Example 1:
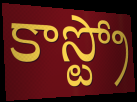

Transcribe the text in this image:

కాస్ట్రో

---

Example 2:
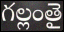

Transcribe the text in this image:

గల్లంతై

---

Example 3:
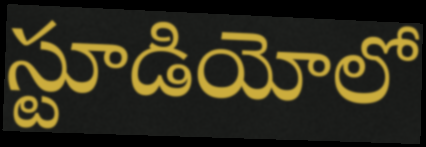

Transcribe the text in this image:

స్టూడియోలో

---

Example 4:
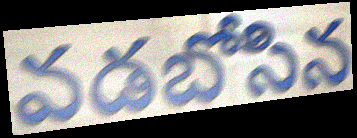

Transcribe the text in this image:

వడబోసిన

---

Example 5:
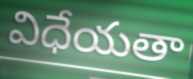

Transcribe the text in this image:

విధేయతా